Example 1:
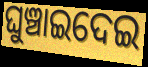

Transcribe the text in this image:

ଘୁଞ୍ଚାଇଦେଇ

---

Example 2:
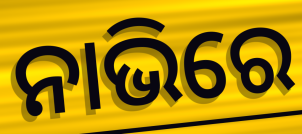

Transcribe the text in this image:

ନାଭିରେ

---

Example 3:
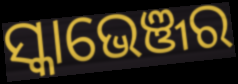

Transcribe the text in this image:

ସ୍କାଭେଞ୍ଜର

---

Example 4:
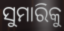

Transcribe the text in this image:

ସୁମାରିକୁ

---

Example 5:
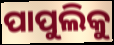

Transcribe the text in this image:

ପାପୁଲିକୁ